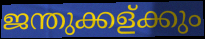
ജന്തുക്കള്ക്കും